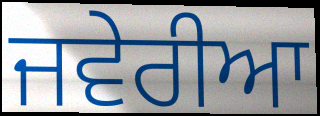
ਜਵੇਰੀਆ